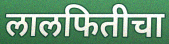
लालफितीचा